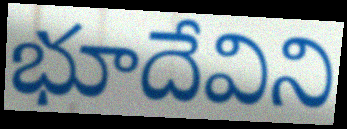
భూదేవిని